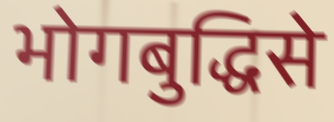
भोगबुद्धिसे